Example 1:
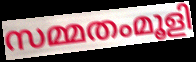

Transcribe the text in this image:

സമ്മതംമൂളി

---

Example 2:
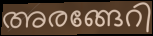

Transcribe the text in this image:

അരങ്ങേറി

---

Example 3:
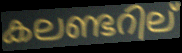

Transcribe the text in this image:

കലണ്ടറില്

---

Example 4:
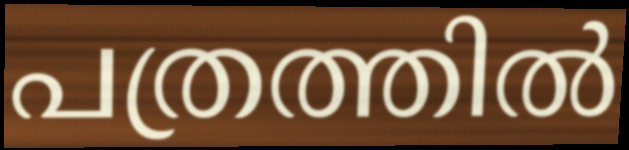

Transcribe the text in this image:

പത്രത്തിൽ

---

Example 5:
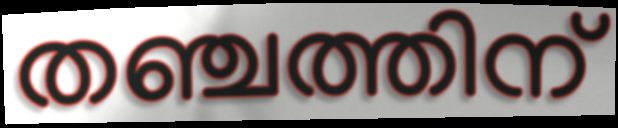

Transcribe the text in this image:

തഞ്ചത്തിന്